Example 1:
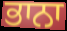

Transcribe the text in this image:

ਭਾਨਾ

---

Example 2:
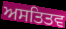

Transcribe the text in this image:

ਅਸਤਿਤਵ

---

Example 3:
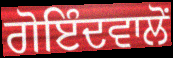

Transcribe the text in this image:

ਗੋਇੰਦਵਾਲੋਂ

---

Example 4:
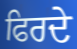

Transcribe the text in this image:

ਫਿਰਦੇ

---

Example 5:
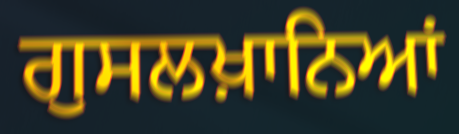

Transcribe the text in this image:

ਗੁਸਲਖ਼ਾਨਿਆਂ